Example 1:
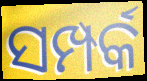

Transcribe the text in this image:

ସମ୍ପର୍କ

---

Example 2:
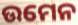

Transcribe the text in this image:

ଉମେନ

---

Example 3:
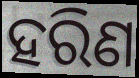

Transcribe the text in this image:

ହରିଣ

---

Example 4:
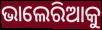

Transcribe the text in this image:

ଭାଲେରିଆକୁ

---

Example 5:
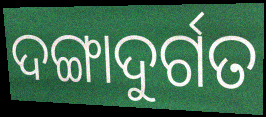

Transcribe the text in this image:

ଦଙ୍ଗାଦୁର୍ଗତ